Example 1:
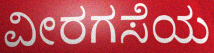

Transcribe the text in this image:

ವೀರಗಸೆಯ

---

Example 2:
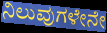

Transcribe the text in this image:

ನಿಲುವುಗಳೇನೇ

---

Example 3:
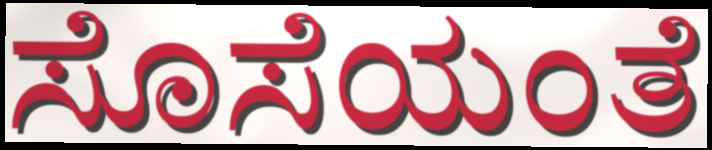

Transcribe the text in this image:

ಸೊಸೆಯಂತೆ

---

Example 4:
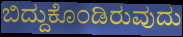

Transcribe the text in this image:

ಬಿದ್ದುಕೊಂಡಿರುವುದು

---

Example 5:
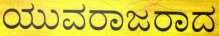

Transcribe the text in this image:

ಯುವರಾಜರಾದ